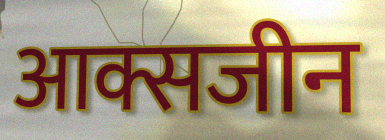
आक्सजीन